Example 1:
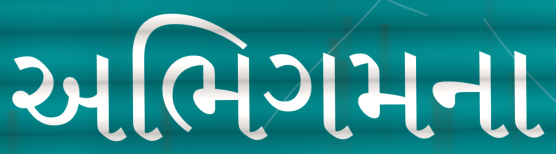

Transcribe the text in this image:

અભિગમના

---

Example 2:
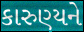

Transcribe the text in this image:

કારુણ્યને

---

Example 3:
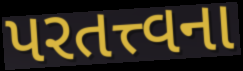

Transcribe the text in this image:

પરતત્ત્વના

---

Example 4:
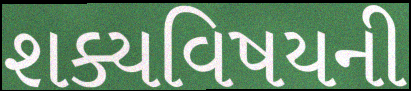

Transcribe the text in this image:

શક્યવિષયની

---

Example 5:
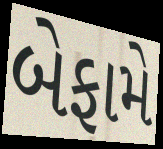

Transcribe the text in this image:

બેફામે